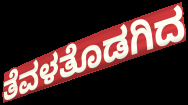
ತೆವಳತೊಡಗಿದ